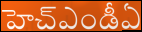
హెచ్ఎండీఏ